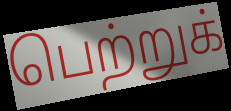
பெற்றுக்